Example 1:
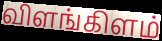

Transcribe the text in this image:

விளங்கிளம்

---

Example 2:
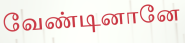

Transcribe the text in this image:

வேண்டினானே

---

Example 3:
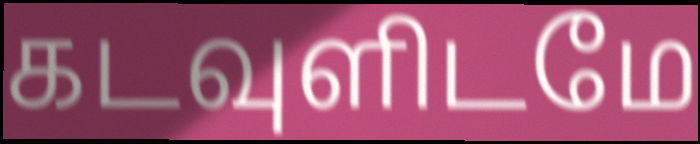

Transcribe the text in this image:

கடவுளிடமே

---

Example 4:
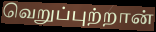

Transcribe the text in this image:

வெறுப்புற்றான்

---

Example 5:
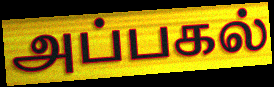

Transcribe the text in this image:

அப்பகல்